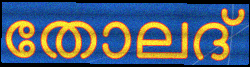
തോലദ്